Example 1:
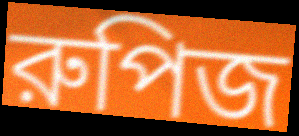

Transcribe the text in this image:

রুপিজ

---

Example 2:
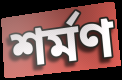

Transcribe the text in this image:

শর্মণ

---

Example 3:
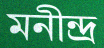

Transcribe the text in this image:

মনীন্দ্র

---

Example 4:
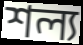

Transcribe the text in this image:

শল্য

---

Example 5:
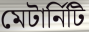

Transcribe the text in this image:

মেটার্নিটি